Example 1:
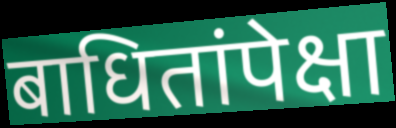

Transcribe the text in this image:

बाधितांपेक्षा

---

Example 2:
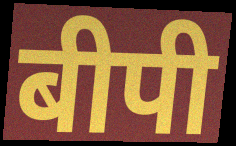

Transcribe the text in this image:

बीपी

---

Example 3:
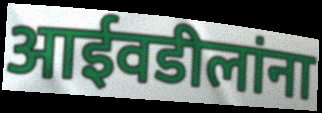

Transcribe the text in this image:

आईवडीलांना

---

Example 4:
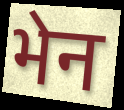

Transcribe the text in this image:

भेन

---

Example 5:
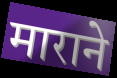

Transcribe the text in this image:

माराने